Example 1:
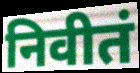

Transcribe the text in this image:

निवीतं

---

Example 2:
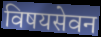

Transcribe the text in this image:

विषयसेवन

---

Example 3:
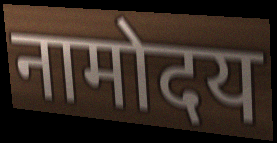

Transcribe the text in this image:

नामोदय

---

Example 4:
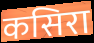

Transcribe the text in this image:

कसिरा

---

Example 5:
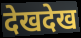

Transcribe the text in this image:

देखदेख